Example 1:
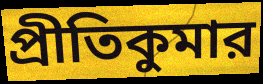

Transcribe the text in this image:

প্রীতিকুমার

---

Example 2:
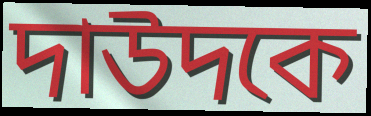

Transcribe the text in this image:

দাউদকে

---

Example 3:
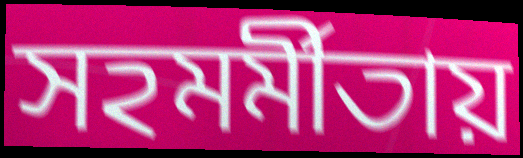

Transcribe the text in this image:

সহমর্মীতায়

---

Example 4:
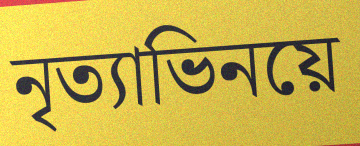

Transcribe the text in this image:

নৃত্যাভিনয়ে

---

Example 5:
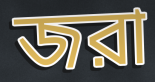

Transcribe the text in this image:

জরা